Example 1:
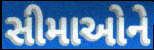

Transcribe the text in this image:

સીમાઓને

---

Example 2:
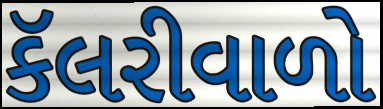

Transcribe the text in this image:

કૅલરીવાળો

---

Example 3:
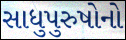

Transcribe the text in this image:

સાધુપુરુષોનો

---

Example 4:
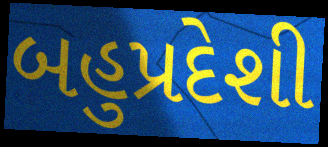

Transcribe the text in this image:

બહુપ્રદેશી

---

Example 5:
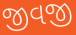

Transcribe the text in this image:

જીવજી